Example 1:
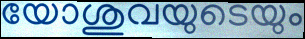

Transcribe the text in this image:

യോശുവയുടെയും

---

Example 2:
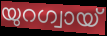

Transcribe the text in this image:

യുറഗ്വായ്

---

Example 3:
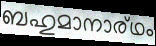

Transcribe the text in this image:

ബഹുമാനാര്ഥം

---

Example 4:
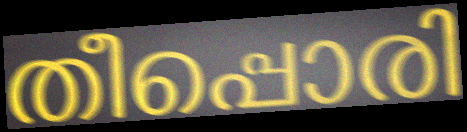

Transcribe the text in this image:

തീപ്പൊരി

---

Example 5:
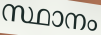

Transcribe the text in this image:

സ്ഥാനം